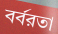
বর্বরতা